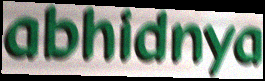
abhidnya